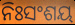
ନିଃସଂଶୟ